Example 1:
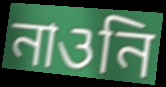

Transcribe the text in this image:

নাওনি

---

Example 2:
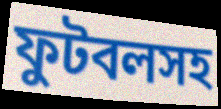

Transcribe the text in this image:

ফুটবলসহ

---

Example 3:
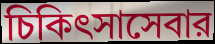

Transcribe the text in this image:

চিকিৎসাসেবার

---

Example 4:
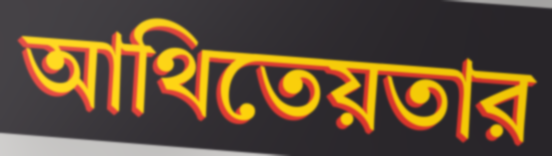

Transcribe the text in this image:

আথিতেয়তার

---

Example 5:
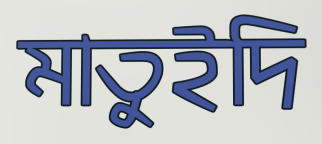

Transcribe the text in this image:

মাতুইদি